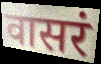
वासरं